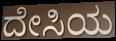
ದೇಸಿಯ